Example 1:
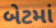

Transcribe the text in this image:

બેટમાં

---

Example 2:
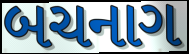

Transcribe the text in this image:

બચનાગ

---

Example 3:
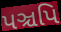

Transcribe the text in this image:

પઞ્ચપિ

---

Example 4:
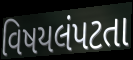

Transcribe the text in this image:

વિષયલંપટતા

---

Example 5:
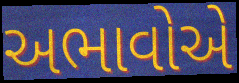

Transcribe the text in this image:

અભાવોએ